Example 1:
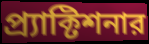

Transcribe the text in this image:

প্র্যাক্টিশনার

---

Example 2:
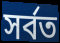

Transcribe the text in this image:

সর্বত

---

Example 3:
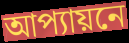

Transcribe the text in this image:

আপ্যায়নে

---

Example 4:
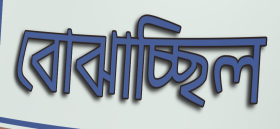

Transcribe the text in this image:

বোঝাচ্ছিল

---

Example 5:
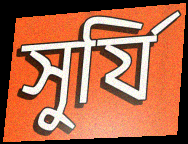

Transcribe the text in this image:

সুর্যি